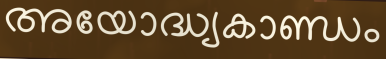
അയോദ്ധ്യകാണ്ഡം